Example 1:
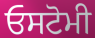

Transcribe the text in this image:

ਓਸਟੋਮੀ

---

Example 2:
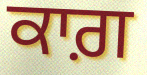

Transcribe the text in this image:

ਕਾਗ਼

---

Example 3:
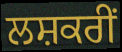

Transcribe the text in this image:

ਲਸ਼ਕਰੀਂ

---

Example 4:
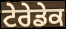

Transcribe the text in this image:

ਟੇਰੇਡੇਕ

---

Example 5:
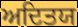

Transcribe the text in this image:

ਅਦਿਤਯ